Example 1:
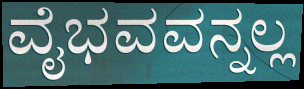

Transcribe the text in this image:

ವೈಭವವನ್ನಲ್ಲ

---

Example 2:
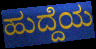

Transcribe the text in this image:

ಹುದ್ದೆಯ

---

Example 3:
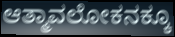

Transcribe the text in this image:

ಆತ್ಮಾವಲೋಕನಕ್ಕೂ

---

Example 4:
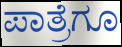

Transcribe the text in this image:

ಪಾತ್ರೆಗೂ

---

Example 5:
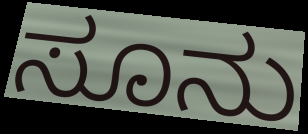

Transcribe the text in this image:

ಸೂನು